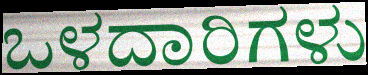
ಒಳದಾರಿಗಳು